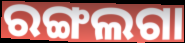
ରଙ୍ଗଲଗା